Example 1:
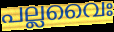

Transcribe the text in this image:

പല്ലവൈഃ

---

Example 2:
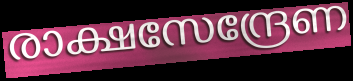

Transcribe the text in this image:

രാക്ഷസേന്ദ്രേണ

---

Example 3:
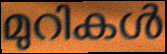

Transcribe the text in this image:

മുറികൾ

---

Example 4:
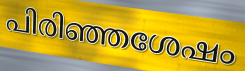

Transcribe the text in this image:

പിരിഞ്ഞശേഷം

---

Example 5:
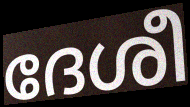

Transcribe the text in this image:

ദേശീ